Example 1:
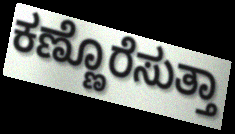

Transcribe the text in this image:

ಕಣ್ಣೊರೆಸುತ್ತಾ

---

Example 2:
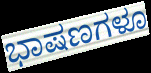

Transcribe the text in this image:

ಭಾಷಣಗಳೂ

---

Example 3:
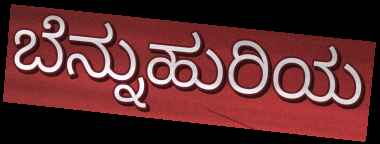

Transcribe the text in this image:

ಬೆನ್ನುಹುರಿಯ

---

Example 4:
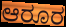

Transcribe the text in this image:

ಆರೂರ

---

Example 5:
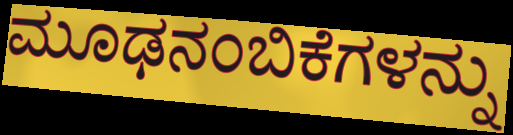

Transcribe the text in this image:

ಮೂಢನಂಬಿಕೆಗಳನ್ನು